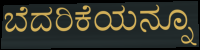
ಬೆದರಿಕೆಯನ್ನೂ